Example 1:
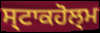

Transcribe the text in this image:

ਸ੍ਟਾਕਹੋਲ੍ਮ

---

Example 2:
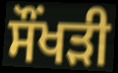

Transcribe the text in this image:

ਸੌਂਖੜੀ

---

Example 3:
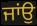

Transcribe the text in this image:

ਜਾਂਉ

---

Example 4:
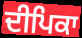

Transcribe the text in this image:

ਦੀਪਿਕਾ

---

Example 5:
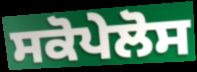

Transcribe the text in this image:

ਸਕੋਪੇਲੋਸ